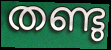
തണ്ടു